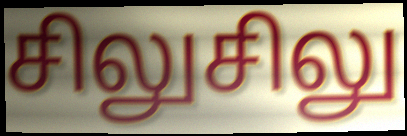
சிலுசிலு